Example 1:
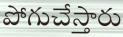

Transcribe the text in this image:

పోగుచేస్తారు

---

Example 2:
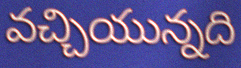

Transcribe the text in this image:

వచ్చియున్నది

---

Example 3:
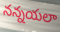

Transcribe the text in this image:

నన్నయలా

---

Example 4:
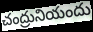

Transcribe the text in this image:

చంద్రునియందు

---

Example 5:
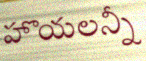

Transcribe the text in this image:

హొయలన్నీ